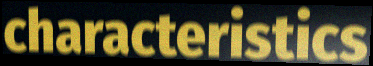
characteristics